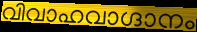
വിവാഹവാഗ്ദാനം